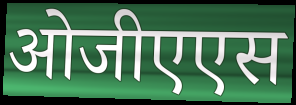
ओजीएएस